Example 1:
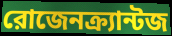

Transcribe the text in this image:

রোজেনক্র্যান্টজ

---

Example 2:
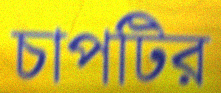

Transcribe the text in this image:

চাপটির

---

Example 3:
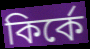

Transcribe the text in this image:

কির্কে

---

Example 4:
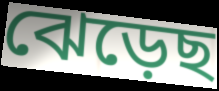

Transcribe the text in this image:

ঝেড়েছ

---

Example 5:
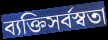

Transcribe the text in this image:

ব্যক্তিসর্বস্বতা